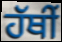
ਹੱਥੀਂ